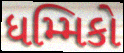
ધમ્મિકો